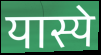
यास्ये